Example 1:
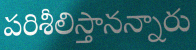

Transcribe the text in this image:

పరిశీలిస్తానన్నారు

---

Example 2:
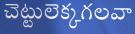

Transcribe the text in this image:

చెట్టులెక్కగలవా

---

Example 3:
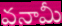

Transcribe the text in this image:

వనామీ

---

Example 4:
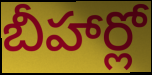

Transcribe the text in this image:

బీహార్లో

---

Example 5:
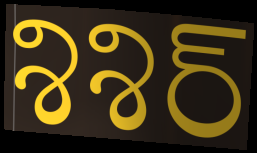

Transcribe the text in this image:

శిశిర్